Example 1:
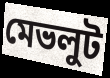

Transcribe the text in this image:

মেভলুট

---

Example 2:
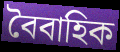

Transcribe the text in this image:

বৈবাহিক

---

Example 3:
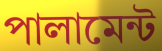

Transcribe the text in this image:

পালামেন্ট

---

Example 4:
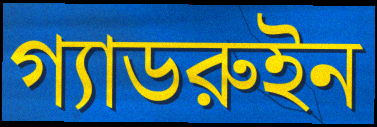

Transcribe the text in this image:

গ্যাডরুইন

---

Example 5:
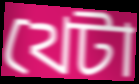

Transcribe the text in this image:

থেটা